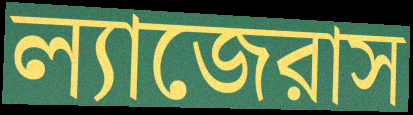
ল্যাজেরাস